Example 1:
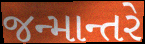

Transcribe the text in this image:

જન્માન્તરે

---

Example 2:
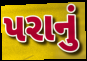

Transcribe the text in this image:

પરાનું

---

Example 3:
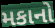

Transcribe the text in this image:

મકાનો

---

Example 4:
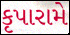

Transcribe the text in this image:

કૃપારામે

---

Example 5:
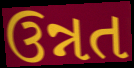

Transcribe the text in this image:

ઉન્નત